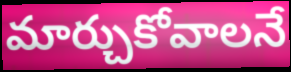
మార్చుకోవాలనే